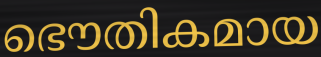
ഭൌതികമായ